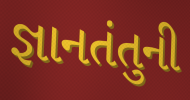
જ્ઞાનતંતુની